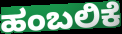
ಹಂಬಲಿಕೆ